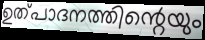
ഉത്പാദനത്തിന്റെയും